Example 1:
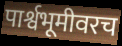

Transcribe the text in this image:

पार्श्वभूमीवरच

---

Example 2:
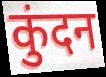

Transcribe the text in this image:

कुंदन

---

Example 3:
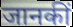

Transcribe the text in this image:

जानकीं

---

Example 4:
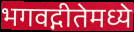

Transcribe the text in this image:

भगवद्गीतेमध्ये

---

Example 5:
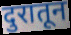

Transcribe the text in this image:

दुरातून